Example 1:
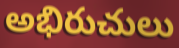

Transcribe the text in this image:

అభిరుచులు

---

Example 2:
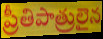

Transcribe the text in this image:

ప్రీతిపాత్రులైన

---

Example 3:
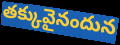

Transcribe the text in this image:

తక్కువైనందున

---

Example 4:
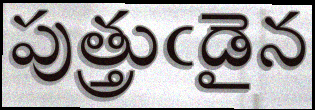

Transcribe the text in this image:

పుత్త్రుఁడైన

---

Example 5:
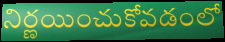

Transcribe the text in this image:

నిర్ణయించుకోవడంలో